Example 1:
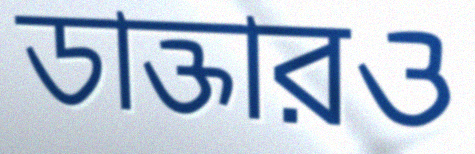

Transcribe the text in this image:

ডাক্তারও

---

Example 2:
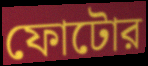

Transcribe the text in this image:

ফোটোর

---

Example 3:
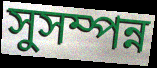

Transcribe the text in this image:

সুসম্পন্ন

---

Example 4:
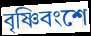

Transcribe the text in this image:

বৃষ্ণিবংশে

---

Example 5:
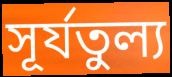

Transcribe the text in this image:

সূর্যতুল্য